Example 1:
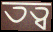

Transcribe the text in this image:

তত্ব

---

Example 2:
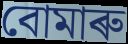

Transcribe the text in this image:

বোমাৰু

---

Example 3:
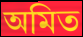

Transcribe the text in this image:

অমিত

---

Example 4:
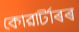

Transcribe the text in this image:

কোৱাৰ্টাৰৰ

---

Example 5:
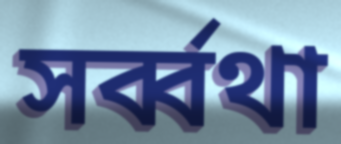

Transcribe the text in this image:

সৰ্ব্বথা